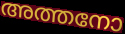
അത്തനോ